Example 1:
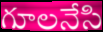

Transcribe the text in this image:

గూలనేసి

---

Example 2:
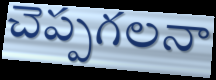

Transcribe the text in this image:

చెప్పగలనా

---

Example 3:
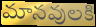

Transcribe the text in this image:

మానవులకి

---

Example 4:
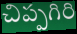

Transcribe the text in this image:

చిప్పగిరి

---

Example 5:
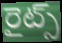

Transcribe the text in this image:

రైట్స్